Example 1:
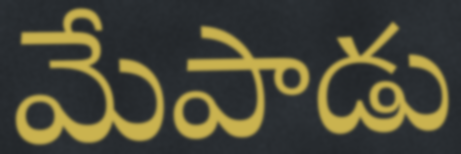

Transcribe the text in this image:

మేపాడు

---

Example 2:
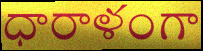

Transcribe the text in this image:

ధారాళంగా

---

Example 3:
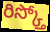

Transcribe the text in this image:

రిస్క్తో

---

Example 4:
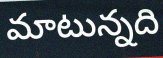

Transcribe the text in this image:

మాటున్నది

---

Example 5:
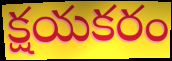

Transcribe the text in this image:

క్షయకరం